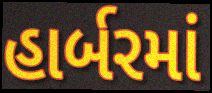
હાર્બરમાં